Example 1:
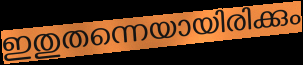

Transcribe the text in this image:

ഇതുതന്നെയായിരിക്കും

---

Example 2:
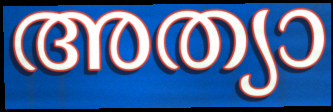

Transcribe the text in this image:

അത്യാ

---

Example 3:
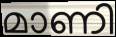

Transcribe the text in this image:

മാണി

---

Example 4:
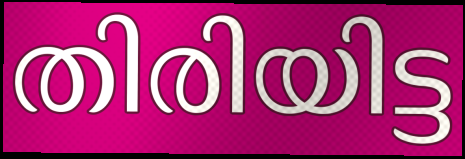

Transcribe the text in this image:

തിരിയിട്ട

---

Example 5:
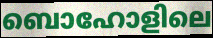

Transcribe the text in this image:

ബൊഹോളിലെ